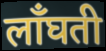
लाँघती